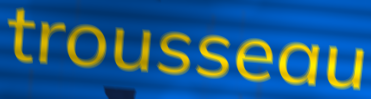
trousseau